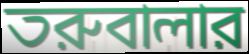
তরুবালার